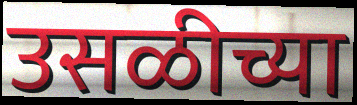
उसळीच्या